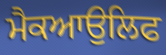
ਮੈਕਆਉਲਿਫ